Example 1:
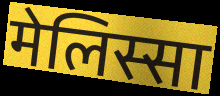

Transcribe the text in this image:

मेलिस्सा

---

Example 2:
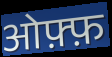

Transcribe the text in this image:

ओफ़्फ़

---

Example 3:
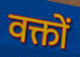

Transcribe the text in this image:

वक्तों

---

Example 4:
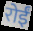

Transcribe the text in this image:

रोईं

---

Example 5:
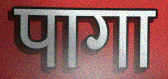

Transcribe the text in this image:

पागा